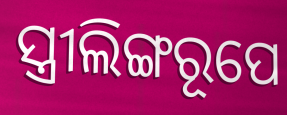
ସ୍ତ୍ରୀଲିଙ୍ଗରୂପେ